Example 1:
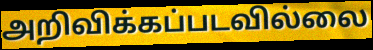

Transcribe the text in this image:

அறிவிக்கப்படவில்லை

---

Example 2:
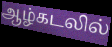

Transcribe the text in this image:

ஆழ்கடலில்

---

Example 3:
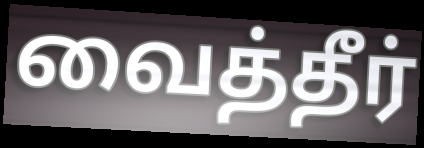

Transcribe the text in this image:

வைத்தீர்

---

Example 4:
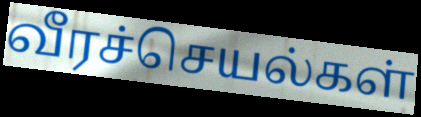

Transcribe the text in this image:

வீரச்செயல்கள்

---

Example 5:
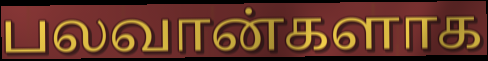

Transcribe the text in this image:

பலவான்களாக